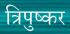
त्रिपुष्कर